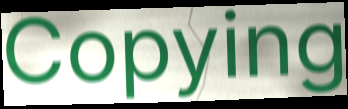
Copying